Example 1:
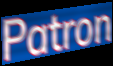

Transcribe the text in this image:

Patron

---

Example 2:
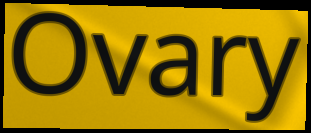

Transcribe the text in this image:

Ovary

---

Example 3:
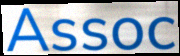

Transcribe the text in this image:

Assoc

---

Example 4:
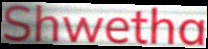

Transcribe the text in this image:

Shwetha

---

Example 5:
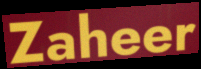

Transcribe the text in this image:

Zaheer